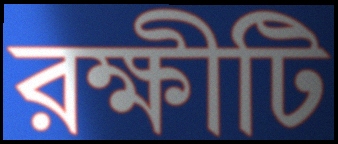
রক্ষীটি